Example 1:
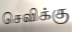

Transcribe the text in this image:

செவிக்கு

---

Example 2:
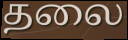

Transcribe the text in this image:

தலை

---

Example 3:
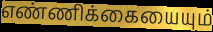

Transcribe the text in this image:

எண்ணிக்கையையும்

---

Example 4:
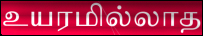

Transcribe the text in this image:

உயரமில்லாத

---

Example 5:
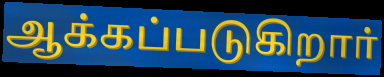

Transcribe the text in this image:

ஆக்கப்படுகிறார்